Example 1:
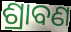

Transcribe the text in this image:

ଶ୍ରାବଣ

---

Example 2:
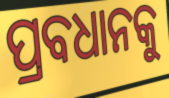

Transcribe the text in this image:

ପ୍ରବଧାନକୁ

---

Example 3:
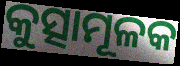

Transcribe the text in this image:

କୁତ୍ସାମୂଳକ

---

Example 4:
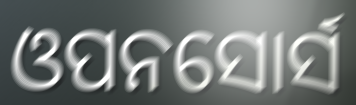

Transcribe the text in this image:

ଓପନସୋର୍ସ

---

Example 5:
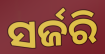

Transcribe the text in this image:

ସର୍ଜରି